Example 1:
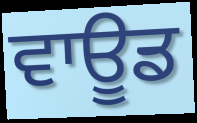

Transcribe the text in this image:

ਵਾਊਡ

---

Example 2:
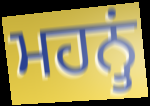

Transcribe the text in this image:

ਮਹਨ੍ਤਂ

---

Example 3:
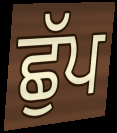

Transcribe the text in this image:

ਛੁੱਪ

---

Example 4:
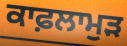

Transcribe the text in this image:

ਕਾਫ਼ਲਾਮੁੜ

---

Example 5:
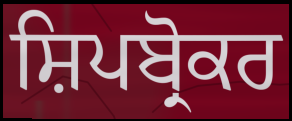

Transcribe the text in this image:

ਸ਼ਿਪਬ੍ਰੋਕਰ